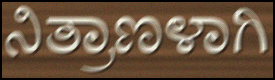
ನಿತ್ರಾಣಳಾಗಿ